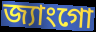
জ্যাংগো